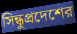
সিন্ধুপ্রদেশের